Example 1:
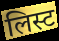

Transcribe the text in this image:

लिस्‍ट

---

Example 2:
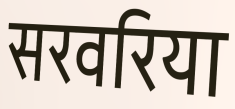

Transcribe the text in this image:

सरवरिया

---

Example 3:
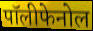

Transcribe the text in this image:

पॉलीफेनोल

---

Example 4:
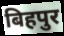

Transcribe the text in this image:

बिहपुर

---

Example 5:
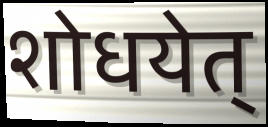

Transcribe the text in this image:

शोधयेत्